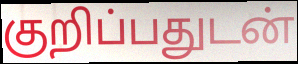
குறிப்பதுடன்